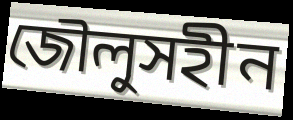
জৌলুসহীন